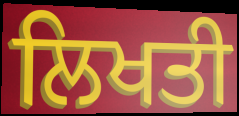
ਲਿਖਤੀ